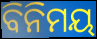
ବିନିମୟ